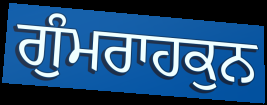
ਗੁੰਮਰਾਹਕੁਨ